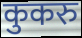
कुकरु